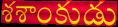
శశాంకుడు